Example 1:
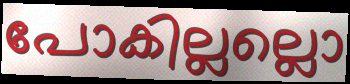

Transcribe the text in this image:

പോകില്ലല്ലൊ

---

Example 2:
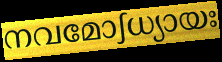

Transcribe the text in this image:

നവമോഽധ്യായഃ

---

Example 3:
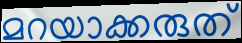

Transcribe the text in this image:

മറയാക്കരുത്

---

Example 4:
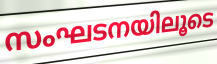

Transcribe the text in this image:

സംഘടനയിലൂടെ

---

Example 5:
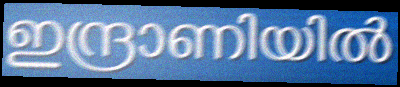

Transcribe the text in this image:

ഇന്ദ്രാണിയിൽ